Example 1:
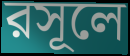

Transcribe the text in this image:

রসূলে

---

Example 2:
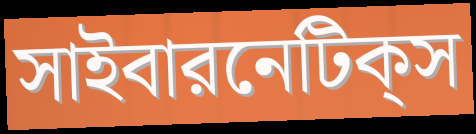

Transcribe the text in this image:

সাইবারনেটিক্‌স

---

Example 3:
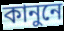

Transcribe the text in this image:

কানুনে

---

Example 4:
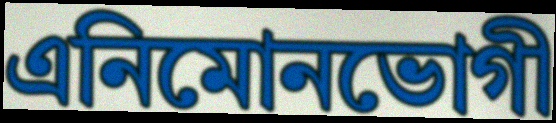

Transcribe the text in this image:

এনিমোনভোগী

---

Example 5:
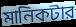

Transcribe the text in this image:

মানিকটার